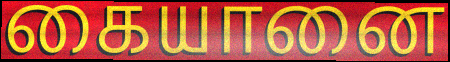
கையானை